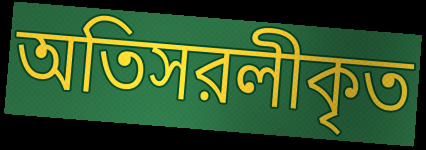
অতিসরলীকৃত